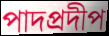
পাদপ্রদীপ